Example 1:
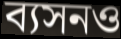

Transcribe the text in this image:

ব্যসনও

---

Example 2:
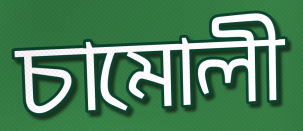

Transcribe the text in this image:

চামোলী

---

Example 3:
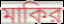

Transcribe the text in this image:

মাকির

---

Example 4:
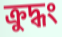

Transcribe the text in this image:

ক্রুদ্ধং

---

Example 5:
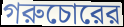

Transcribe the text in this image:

গরুচোরের